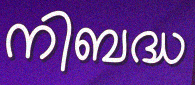
നിബദ്ധ